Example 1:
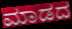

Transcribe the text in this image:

ಮಾಡದ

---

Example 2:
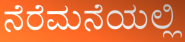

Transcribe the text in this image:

ನೆರೆಮನೆಯಲ್ಲಿ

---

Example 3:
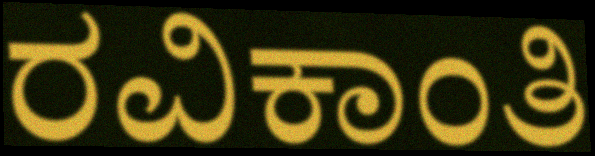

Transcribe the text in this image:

ರವಿಕಾಂತಿ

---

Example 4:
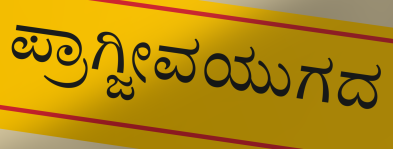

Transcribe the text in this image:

ಪ್ರಾಗ್ಜೀವಯುಗದ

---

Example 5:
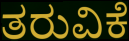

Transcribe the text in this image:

ತರುವಿಕೆ